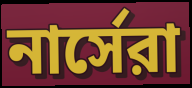
নার্সেরা